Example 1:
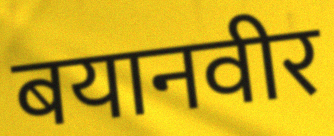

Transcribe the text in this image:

बयानवीर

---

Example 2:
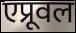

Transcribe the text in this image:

एप्रूवल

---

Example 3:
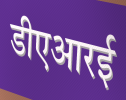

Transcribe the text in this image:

डीएआरई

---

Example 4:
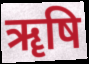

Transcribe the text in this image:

ॠषि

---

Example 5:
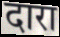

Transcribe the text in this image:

दारा